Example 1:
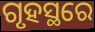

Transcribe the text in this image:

ଗୃହସ୍ଥରେ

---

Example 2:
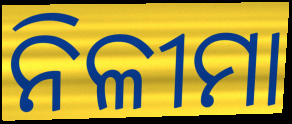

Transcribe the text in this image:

ନିଳୀମା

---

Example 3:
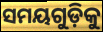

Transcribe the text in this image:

ସମୟଗୁଡ଼ିକୁ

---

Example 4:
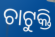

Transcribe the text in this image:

ଚାଟୁକ୍ତି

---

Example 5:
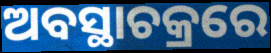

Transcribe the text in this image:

ଅବସ୍ଥାଚକ୍ରରେ